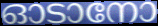
ഓടാനോ